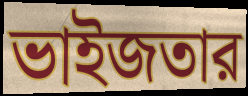
ভাইজতার